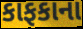
કાફકાના